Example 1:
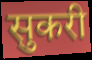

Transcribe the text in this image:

सुकरी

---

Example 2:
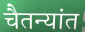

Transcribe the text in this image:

चैतन्यांत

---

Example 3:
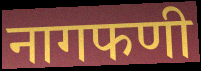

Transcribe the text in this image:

नागफणी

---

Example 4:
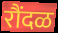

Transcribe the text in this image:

रौंदळ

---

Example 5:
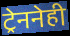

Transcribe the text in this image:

ट्रेननेही